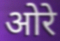
ओरे